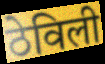
ठेविली